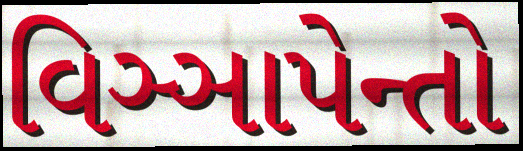
વિઞ્ઞાપેન્તો